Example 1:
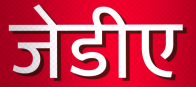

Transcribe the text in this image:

जेडीए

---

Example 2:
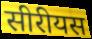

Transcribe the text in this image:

सीरीयस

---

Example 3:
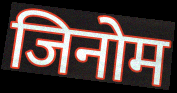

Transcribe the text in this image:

जिनोम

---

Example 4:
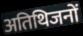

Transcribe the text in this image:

अतिथिजनों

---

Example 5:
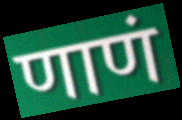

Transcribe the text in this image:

णाणं